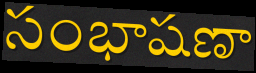
సంభాషణా